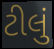
ટીલું